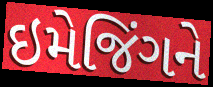
ઇમેજિંગને